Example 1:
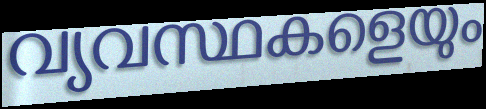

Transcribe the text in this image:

വ്യവസ്ഥകളെയും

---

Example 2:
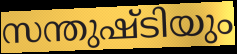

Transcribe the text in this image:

സന്തുഷ്ടിയും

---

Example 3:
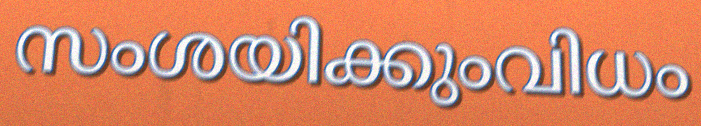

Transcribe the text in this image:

സംശയിക്കുംവിധം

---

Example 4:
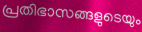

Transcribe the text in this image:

പ്രതിഭാസങ്ങളുടെയും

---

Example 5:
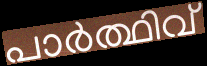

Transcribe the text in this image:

പാർത്ഥിവ്